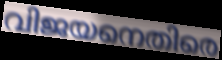
വിജയനെതിരെ